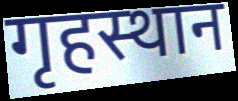
गृहस्थान